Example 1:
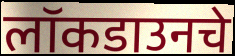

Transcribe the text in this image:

लॉकडाउनचे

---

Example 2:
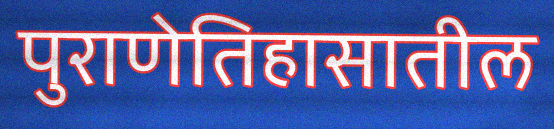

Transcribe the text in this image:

पुराणेतिहासातील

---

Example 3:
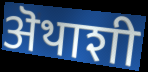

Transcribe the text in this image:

ऄथाशी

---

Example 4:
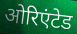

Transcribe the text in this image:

ओरिएंटेड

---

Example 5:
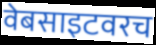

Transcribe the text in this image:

वेबसाइटवरच